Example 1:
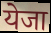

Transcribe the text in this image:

येजा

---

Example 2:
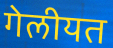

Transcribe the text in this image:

गेलीयत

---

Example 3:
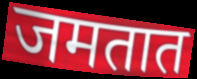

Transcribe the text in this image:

जमतात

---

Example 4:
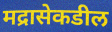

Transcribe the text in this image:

मद्रासेकडील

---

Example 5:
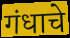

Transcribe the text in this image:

गंधाचे